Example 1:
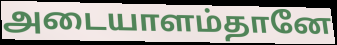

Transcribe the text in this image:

அடையாளம்தானே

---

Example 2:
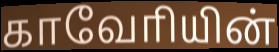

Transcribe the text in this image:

காவேரியின்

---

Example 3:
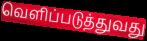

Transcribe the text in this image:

வெளிப்படுத்துவது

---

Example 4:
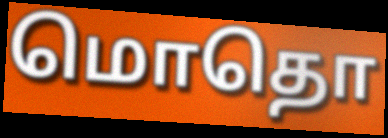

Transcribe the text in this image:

மொதொ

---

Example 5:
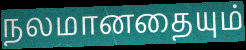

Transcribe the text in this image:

நலமானதையும்